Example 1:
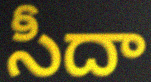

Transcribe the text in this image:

సీదా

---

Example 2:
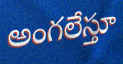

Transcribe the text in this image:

అంగలేస్తూ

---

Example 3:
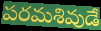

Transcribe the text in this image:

పరమశివుడే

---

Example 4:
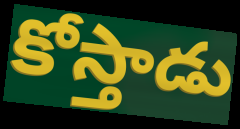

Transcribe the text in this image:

కోస్తాడు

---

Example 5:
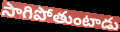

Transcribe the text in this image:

సాగిపోతుంటాడు